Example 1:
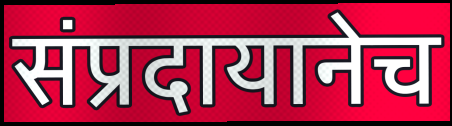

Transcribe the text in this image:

संप्रदायानेच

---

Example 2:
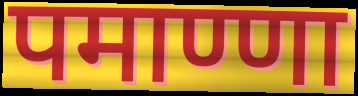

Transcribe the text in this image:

पमाण्णा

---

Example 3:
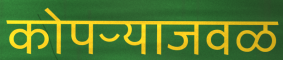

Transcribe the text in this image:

कोपऱ्याजवळ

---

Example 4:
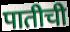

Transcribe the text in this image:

पातीची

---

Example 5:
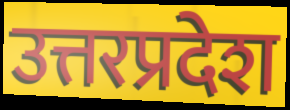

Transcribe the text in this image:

उत्तरप्रदेश